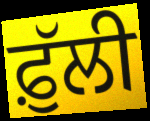
ਫ਼ੁੱਲੀ